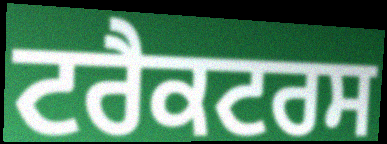
ਟਰੈਕਟਰਸ